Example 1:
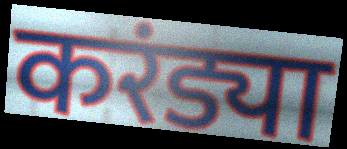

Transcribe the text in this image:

करंड्या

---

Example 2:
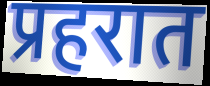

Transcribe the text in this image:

प्रहरात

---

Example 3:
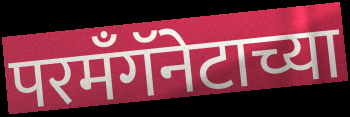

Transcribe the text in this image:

परमँगॅनेटाच्या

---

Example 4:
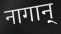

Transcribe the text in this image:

नागान्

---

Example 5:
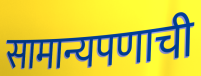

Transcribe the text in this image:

सामान्यपणाची